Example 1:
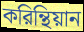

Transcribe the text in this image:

করিন্থিয়ান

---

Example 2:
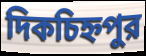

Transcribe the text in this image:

দিকচিহ্নপুর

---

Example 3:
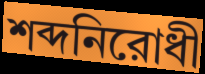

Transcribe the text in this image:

শব্দনিরোধী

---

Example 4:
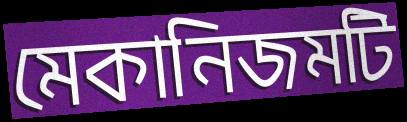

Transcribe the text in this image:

মেকানিজমটি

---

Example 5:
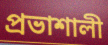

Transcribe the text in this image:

প্রভাশালী